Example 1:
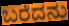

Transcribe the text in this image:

ಬರೆದನು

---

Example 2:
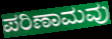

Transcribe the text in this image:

ಪರಿಣಾಮವು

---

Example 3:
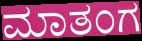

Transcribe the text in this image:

ಮಾತಂಗ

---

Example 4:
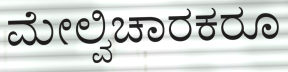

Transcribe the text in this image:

ಮೇಲ್ವಿಚಾರಕರೂ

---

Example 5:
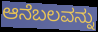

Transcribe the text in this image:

ಆನೆಬಲವನ್ನು